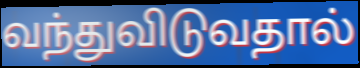
வந்துவிடுவதால்